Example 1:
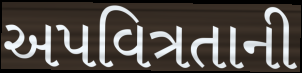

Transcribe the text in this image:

અપવિત્રતાની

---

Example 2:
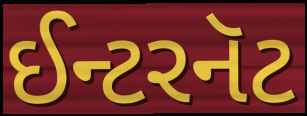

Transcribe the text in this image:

ઈન્ટરનૅટ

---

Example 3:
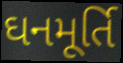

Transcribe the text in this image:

ઘનમૂર્તિ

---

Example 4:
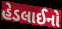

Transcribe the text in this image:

હેડલાઈનો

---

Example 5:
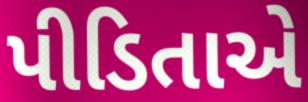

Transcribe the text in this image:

પીડિતાએ